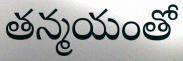
తన్మయంతో